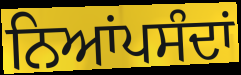
ਨਿਆਂਪਸੰਦਾਂ